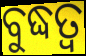
ବୁଦ୍ଧତ୍ୱ